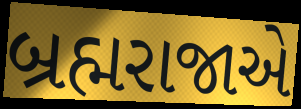
બ્રહ્મરાજાએ